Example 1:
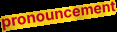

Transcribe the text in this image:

pronouncement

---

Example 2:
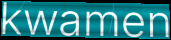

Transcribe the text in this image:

kwamen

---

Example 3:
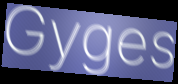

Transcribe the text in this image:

Gyges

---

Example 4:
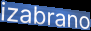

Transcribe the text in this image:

izabrano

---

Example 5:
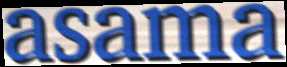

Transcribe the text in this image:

asama